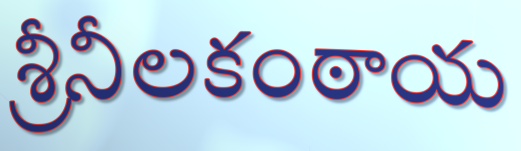
శ్రీనీలకంఠాయ